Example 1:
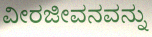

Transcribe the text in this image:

ವೀರಜೀವನವನ್ನು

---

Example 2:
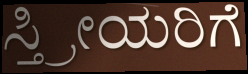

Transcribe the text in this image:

ಸ್ತ್ರೀಯರಿಗೆ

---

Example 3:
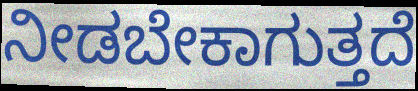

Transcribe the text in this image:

ನೀಡಬೇಕಾಗುತ್ತದೆ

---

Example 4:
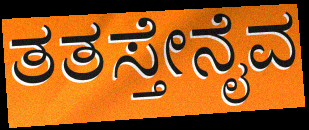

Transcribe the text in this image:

ತತಸ್ತೇನೈವ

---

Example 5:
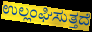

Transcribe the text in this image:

ಉಲ್ಲಂಘಿಸುತ್ತದೆ